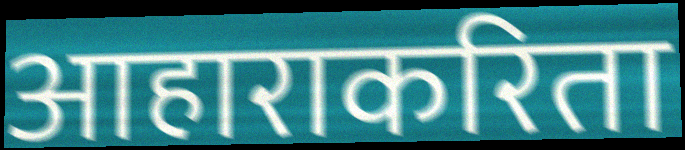
आहाराकरिता